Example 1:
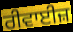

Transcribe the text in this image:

ਰੀਵਾਈਜ਼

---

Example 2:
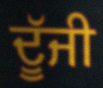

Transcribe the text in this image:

ਦੂੱਜੀ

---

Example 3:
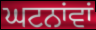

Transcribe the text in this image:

ਘਟਨਾਂਵਾਂ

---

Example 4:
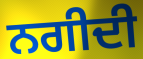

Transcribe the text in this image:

ਨਗੀਦੀ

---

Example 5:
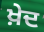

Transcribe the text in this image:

ਖ਼ੇਦ